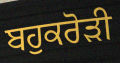
ਬਹੁਕਰੋਡ਼ੀ